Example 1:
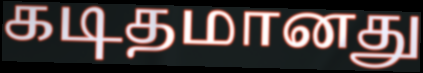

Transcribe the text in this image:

கடிதமானது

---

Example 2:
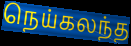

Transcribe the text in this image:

நெய்கலந்த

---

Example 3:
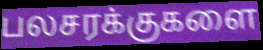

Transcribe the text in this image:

பலசரக்குகளை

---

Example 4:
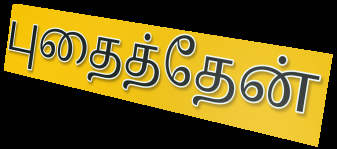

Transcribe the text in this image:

புதைத்தேன்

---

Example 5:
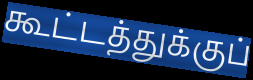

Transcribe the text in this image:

கூட்டத்துக்குப்